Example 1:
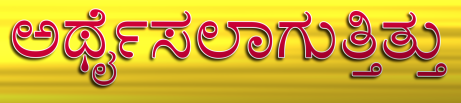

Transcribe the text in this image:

ಅರ್ಥೈಸಲಾಗುತ್ತಿತ್ತು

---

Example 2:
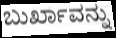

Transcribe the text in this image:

ಬುರ್ಖಾವನ್ನು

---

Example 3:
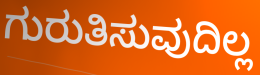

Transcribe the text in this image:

ಗುರುತಿಸುವುದಿಲ್ಲ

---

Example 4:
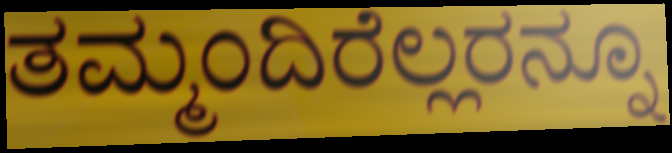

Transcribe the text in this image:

ತಮ್ಮಂದಿರೆಲ್ಲರನ್ನೂ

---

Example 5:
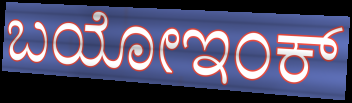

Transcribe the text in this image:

ಬಯೋಇಂಕ್